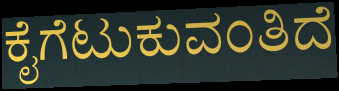
ಕೈಗೆಟುಕುವಂತಿದೆ